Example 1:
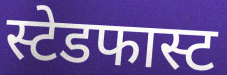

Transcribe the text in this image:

स्टेडफास्ट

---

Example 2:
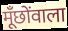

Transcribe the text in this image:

मूँछोंवाला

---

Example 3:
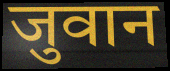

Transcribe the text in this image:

जुवान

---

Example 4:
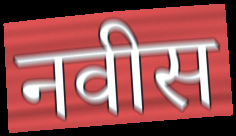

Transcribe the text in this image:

नवीस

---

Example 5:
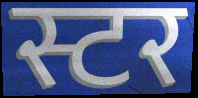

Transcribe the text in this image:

स्टर